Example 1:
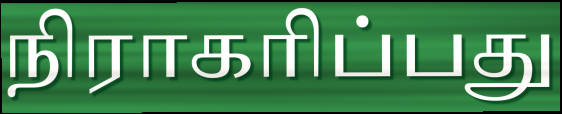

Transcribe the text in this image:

நிராகரிப்பது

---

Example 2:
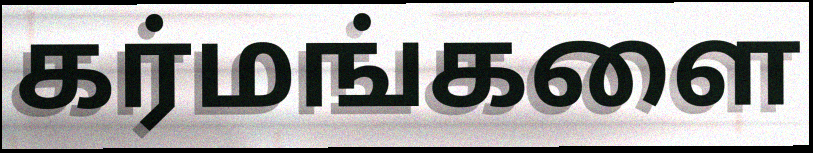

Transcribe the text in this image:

கர்மங்களை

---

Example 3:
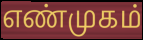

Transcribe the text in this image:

எண்முகம்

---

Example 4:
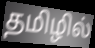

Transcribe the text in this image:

தமிழில்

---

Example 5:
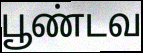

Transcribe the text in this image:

பூண்டவ